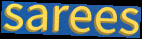
sarees